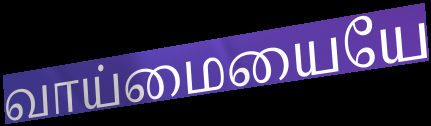
வாய்மையையே